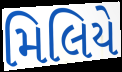
મિલિયે